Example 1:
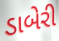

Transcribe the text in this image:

ડાબેરી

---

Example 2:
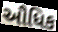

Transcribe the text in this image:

ઔધિક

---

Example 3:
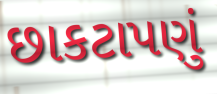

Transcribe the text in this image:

છાકટાપણું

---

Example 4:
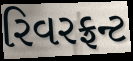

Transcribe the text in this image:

રિવરફ્રન્ટ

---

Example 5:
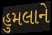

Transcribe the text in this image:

હુમલાને